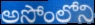
అసోంలోని